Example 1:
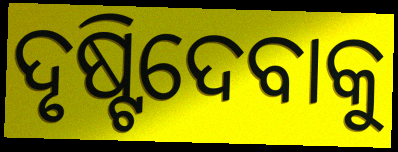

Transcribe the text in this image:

ଦୃଷ୍ଟିଦେବାକୁ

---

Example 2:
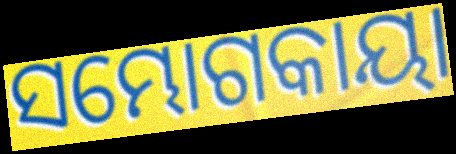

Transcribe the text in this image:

ସମ୍ଭୋଗକାୟା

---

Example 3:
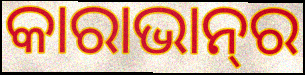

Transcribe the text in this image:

କାରାଭାନ୍‍ର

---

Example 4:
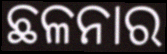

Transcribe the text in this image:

ଛଳନାର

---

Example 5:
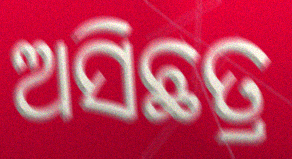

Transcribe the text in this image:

ଅସିଛତ୍ର